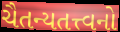
ચૈતન્યતત્ત્વનો